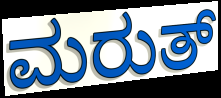
ಮರುತ್